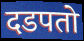
दडपतो